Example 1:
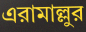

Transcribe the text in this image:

এরামাল্লুর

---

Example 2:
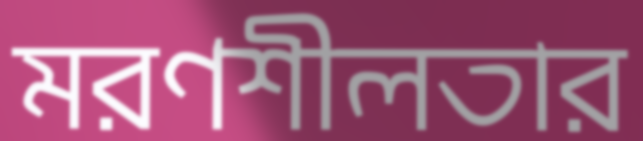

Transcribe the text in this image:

মরণশীলতার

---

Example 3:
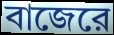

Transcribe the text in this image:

বাজেরে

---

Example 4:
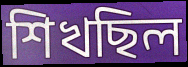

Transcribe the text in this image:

শিখছিল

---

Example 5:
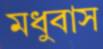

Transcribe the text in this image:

মধুবাস